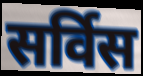
सर्विस